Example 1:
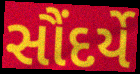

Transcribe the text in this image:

સૌંદર્યે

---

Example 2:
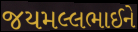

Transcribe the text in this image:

જયમલ્લભાઈને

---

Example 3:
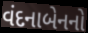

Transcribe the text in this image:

વંદનાબેનનો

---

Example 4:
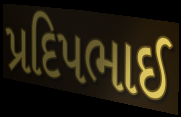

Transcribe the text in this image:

પ્રદિપભાઈ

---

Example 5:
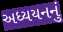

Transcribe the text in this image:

અધ્યયનનું